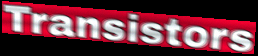
Transistors